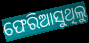
ଫେରିଆସୁଥିଲୁ